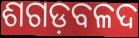
ଶଗଡ଼ବଳଦ